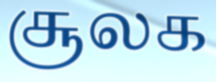
சூலக